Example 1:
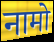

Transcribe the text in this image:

नामो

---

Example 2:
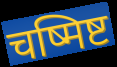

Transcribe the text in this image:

चष्मिष्ट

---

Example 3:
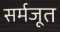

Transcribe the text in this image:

सर्मजूत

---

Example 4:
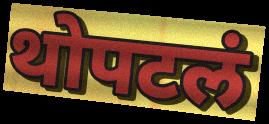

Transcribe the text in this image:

थोपटलं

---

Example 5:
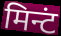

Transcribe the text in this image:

मिन्टं